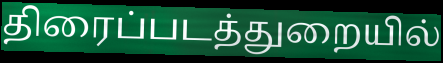
திரைப்படத்துறையில்